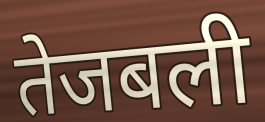
तेजबली